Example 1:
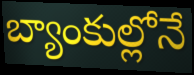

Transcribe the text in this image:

బ్యాంకుల్లోనే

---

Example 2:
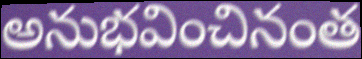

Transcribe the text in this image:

అనుభవించినంత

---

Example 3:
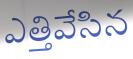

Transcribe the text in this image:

ఎత్తివేసిన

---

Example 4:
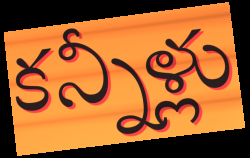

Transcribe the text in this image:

కన్నీళ్లు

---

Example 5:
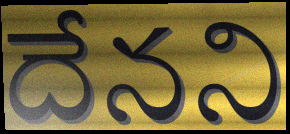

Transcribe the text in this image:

దేనని